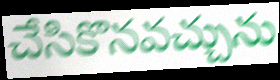
చేసికొనవచ్చును